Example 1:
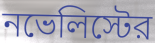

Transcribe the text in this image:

নভেলিস্টের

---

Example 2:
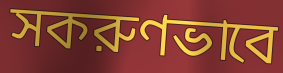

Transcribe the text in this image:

সকরুণভাবে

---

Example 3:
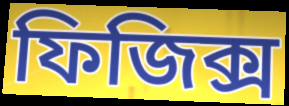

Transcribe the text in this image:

ফিজিক্স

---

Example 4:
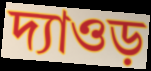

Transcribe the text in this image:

দ্যাওড়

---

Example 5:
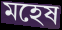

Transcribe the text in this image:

মহেষ